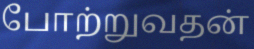
போற்றுவதன்